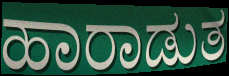
ಹಾರಾಡುತ